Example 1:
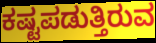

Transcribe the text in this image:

ಕಷ್ಟಪಡುತ್ತಿರುವ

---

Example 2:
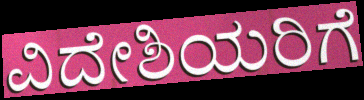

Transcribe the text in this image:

ವಿದೇಶಿಯರಿಗೆ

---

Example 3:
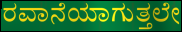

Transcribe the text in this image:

ರವಾನೆಯಾಗುತ್ತಲೇ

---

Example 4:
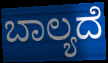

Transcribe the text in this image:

ಬಾಲ್ಯದೆ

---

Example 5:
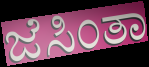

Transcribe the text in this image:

ಜೆಸಿಂತಾ